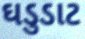
ઘડુડાટ